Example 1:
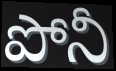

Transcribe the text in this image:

పోనీ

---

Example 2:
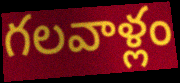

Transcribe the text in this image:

గలవాళ్లం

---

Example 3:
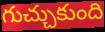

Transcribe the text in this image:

గుచ్చుకుంది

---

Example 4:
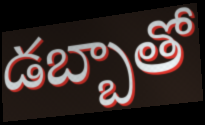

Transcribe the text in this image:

డబ్బాతో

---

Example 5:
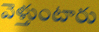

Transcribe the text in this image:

వెళ్తుంటారు